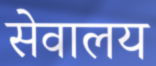
सेवालय